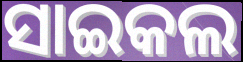
ସାଇକଲ